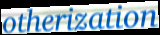
otherization